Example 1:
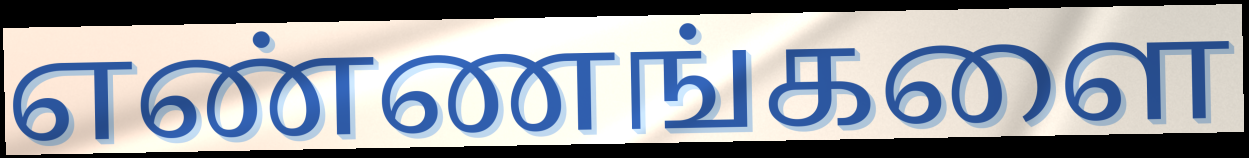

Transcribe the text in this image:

எண்ணங்களை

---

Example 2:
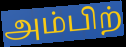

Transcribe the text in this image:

அம்பிற்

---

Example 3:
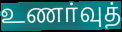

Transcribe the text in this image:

உணர்வுத்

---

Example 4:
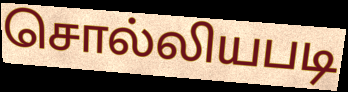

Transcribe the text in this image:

சொல்லியபடி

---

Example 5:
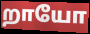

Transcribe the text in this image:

றாயோ